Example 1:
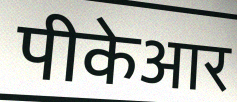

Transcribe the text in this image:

पीकेआर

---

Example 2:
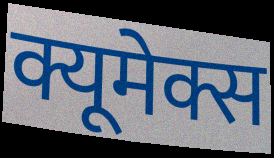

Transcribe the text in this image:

क्यूमेक्स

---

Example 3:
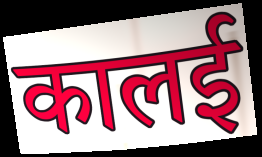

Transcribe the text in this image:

कालई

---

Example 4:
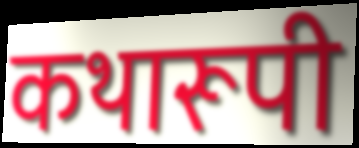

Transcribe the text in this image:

कथारूपी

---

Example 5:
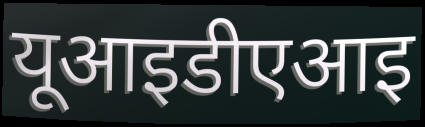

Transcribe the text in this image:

यूआइडीएआइ